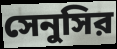
সেনুসির